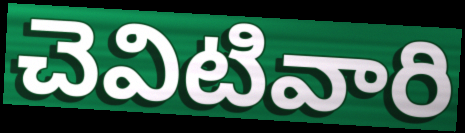
చెవిటివారి